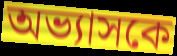
অভ্যাসকে